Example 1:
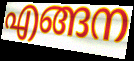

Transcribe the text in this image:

എങ്ങന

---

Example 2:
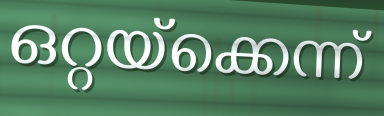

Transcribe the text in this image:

ഒറ്റയ്‌ക്കെന്ന്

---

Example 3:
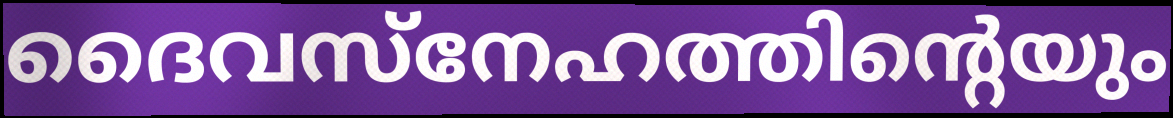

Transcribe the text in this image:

ദൈവസ്നേഹത്തിന്റെയും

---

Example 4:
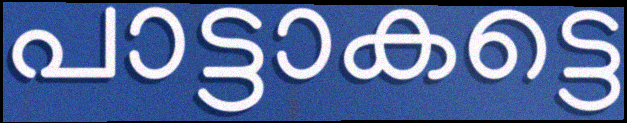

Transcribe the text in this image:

പാട്ടാകട്ടെ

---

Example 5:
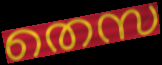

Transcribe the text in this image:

തെസ